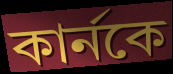
কার্নকে